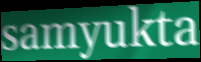
samyukta